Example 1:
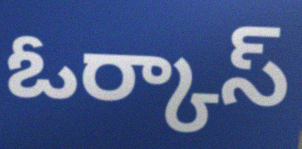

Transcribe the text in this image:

ఓర్కాస్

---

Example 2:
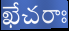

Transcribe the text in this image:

ఖేచరాః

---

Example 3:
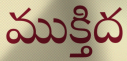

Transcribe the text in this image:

ముక్తిద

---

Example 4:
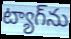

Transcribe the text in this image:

ట్యాగ్‌ను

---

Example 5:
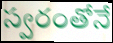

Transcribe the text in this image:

స్వరంతోనే